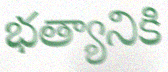
భత్యానికి